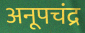
अनूपचंद्र